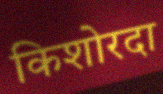
किशोरदा